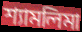
শ্যামলিমা